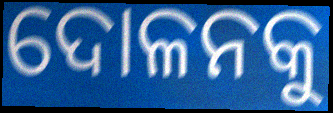
ଦୋଳନକୁ